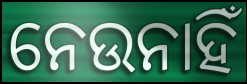
ନେଉନାହିଁ